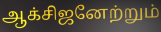
ஆக்சிஜனேற்றும்